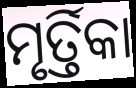
ମୃର୍ତ୍ତିକା